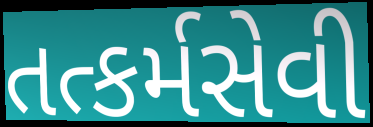
તત્કર્મસેવી